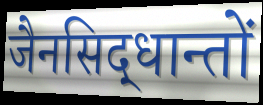
जैनसिद्धान्तों